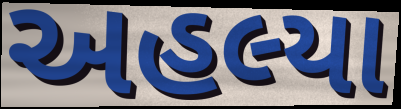
અહલ્યા